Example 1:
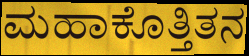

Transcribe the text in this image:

ಮಹಾಕೊತ್ತಿತನ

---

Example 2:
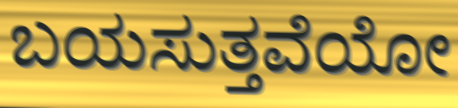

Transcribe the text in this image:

ಬಯಸುತ್ತವೆಯೋ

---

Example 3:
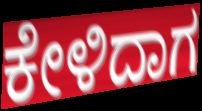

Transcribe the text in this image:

ಕೇಳಿದಾಗ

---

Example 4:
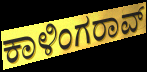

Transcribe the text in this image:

ಕಾಳಿಂಗರಾವ್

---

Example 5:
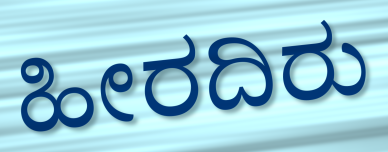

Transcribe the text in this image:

ಹೀರದಿರು